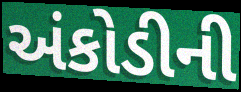
અંકોડીની